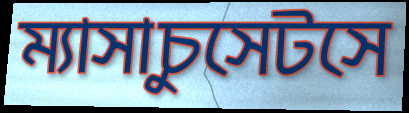
ম্যাসাচুসেটসে